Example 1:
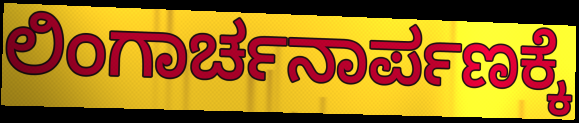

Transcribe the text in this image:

ಲಿಂಗಾರ್ಚನಾರ್ಪಣಕ್ಕೆ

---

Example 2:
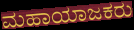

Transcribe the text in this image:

ಮಹಾಯಾಜಕರು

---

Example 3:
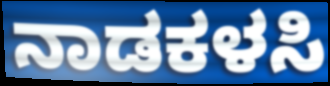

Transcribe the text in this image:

ನಾಡಕಳಸಿ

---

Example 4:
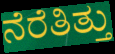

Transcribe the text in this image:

ನೆರೆತಿತ್ತು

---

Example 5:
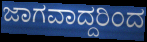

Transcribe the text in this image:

ಜಾಗವಾದ್ದರಿಂದ